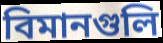
বিমানগুলি